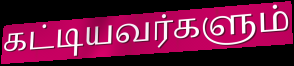
கட்டியவர்களும்